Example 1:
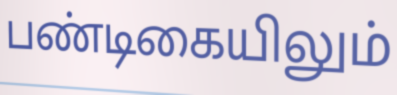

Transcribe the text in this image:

பண்டிகையிலும்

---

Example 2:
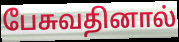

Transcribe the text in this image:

பேசுவதினால்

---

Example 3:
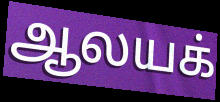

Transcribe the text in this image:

ஆலயக்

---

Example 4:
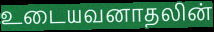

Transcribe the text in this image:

உடையவனாதலின்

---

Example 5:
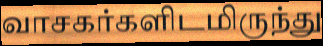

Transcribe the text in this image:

வாசகர்களிடமிருந்து